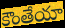
కౌంతేయా